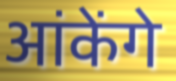
आंकेंगे